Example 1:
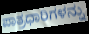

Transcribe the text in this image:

ಪಾತ್ರಧಾರಿಗಳನ್ನು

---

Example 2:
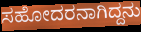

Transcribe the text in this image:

ಸಹೋದರನಾಗಿದ್ದನು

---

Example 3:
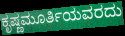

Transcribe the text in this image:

ಕೃಷ್ಣಮೂರ್ತಿಯವರದು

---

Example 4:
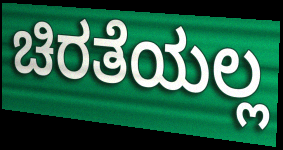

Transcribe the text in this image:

ಚಿರತೆಯಲ್ಲ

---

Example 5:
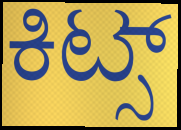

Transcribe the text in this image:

ಕಿಟ್ಸ್